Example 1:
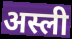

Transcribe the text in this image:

अस्ली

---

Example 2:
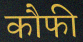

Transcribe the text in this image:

कौफी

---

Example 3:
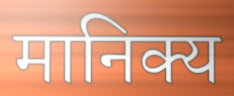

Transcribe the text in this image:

मानिक्य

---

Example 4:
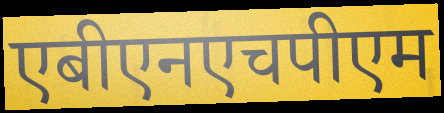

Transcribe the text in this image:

एबीएनएचपीएम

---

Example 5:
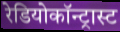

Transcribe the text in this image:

रेडियोकॉन्ट्रास्ट